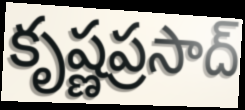
కృష్ణప్రసాద్